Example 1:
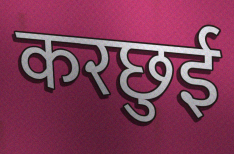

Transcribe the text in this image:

करछुई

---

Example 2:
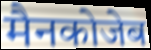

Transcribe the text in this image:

मैनकोजेब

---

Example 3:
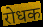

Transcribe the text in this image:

रोधक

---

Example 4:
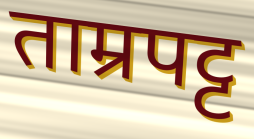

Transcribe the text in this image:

ताम्रपट्ट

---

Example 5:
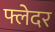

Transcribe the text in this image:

फ्लेदर